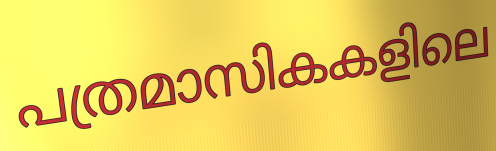
പത്രമാസികകളിലെ